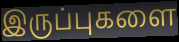
இருப்புகளை